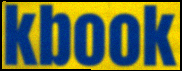
kbook